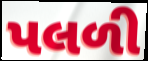
પલળી